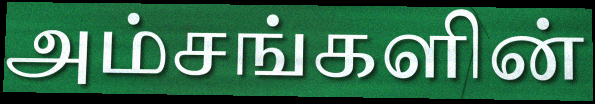
அம்சங்களின்